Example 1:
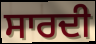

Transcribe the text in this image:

ਸਾਰਦੀ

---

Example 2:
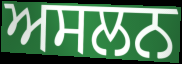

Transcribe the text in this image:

ਅਸਲਨ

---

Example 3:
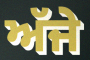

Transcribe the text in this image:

ਅੱਜੇ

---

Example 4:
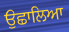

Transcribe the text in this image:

ਉਛਾਲਿਆ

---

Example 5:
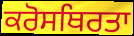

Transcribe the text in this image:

ਕਰੋਸਥਿਰਤਾ